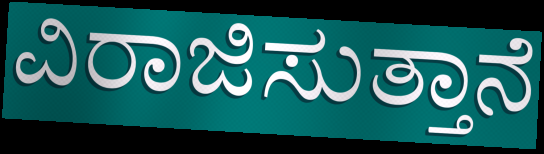
ವಿರಾಜಿಸುತ್ತಾನೆ